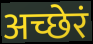
अच्छेरं